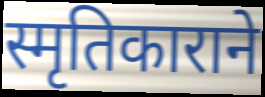
स्मृतिकाराने